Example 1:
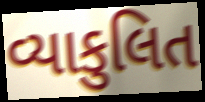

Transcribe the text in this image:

વ્યાકુલિત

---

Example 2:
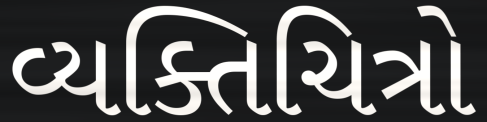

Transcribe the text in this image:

વ્યક્તિચિત્રો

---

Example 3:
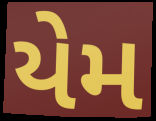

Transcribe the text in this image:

યેમ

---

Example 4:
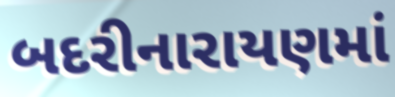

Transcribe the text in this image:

બદરીનારાયણમાં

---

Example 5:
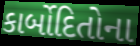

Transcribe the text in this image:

કાર્બોદિતોના